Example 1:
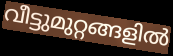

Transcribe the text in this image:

വീട്ടുമുറ്റങ്ങളിൽ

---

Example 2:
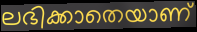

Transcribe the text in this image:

ലഭിക്കാതെയാണ്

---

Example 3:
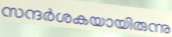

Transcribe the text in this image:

സന്ദർശകയായിരുന്നു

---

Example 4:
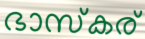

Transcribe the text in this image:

ഭാസ്കര്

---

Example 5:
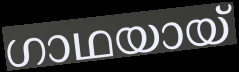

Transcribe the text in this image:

ഗാഥയായ്